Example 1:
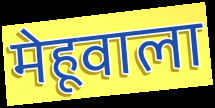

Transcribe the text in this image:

मेहूवाला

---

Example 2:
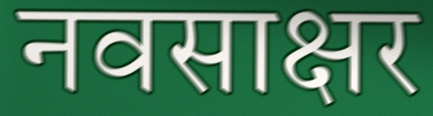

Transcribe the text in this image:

नवसाक्षर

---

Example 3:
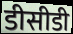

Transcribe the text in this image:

डीसीडी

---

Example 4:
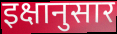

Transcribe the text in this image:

इक्षानुसार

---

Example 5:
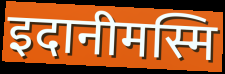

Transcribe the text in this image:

इदानीमस्मि